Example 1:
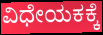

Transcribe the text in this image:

ವಿಧೇಯಕಕ್ಕೆ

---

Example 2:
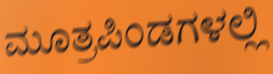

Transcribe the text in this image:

ಮೂತ್ರಪಿಂಡಗಳಲ್ಲಿ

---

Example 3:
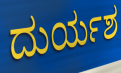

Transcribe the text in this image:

ದುರ್ಯಶ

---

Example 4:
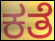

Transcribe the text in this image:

ಕತೆ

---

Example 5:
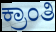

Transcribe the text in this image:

ಕ್ರಾಂತಿ